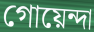
গোয়েন্দা